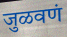
जुळवणं